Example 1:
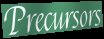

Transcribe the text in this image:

Precursors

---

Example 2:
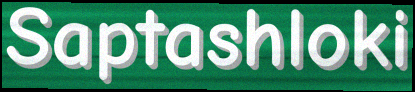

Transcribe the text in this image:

Saptashloki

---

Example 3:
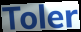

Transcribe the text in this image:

Toler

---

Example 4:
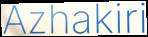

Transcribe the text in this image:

Azhakiri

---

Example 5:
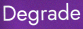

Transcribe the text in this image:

Degrade